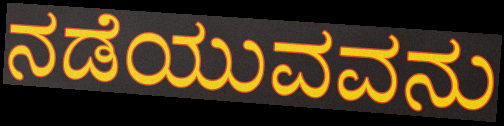
ನಡೆಯುವವನು